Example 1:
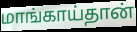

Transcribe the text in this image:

மாங்காய்தான்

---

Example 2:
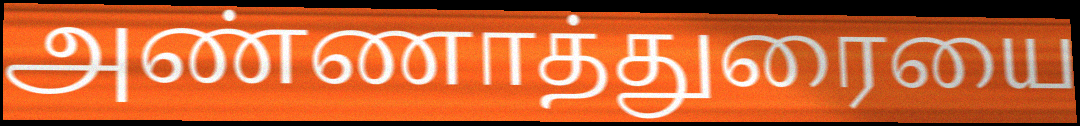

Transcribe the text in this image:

அண்ணாத்துரையை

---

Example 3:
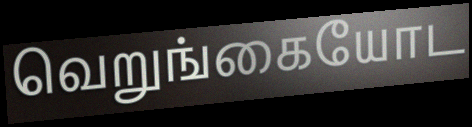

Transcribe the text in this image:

வெறுங்கையோட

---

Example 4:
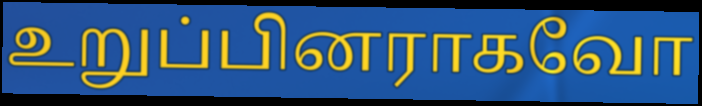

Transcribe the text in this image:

உறுப்பினராகவோ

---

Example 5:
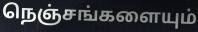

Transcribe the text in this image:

நெஞ்சங்களையும்